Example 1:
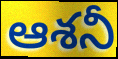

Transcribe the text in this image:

ఆశనీ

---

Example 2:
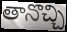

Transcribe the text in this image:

తానొచ్చి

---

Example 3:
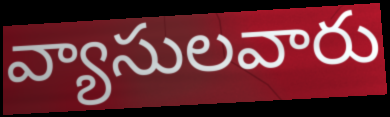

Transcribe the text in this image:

వ్యాసులవారు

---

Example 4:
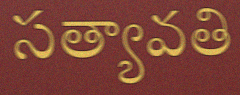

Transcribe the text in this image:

సత్యావతి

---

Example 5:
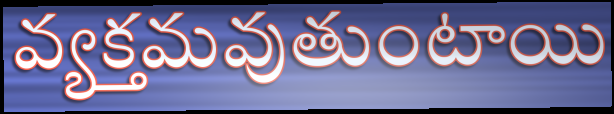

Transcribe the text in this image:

వ్యక్తమవుతుంటాయి